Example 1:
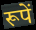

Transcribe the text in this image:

रूपें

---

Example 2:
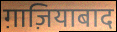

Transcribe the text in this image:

ग़ाज़ियाबाद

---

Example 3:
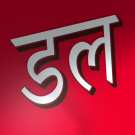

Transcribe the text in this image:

डल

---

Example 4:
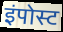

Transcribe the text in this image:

इंपोस्ट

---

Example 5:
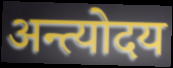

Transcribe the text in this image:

अन्त्योदय